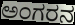
ಅಂಗರನ